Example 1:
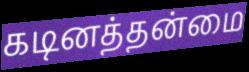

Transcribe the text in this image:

கடினத்தன்மை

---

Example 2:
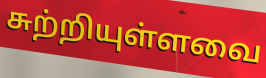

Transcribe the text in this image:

சுற்றியுள்ளவை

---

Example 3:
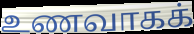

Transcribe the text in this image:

உணவாகக்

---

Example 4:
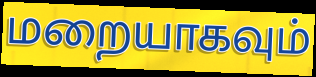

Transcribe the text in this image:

மறையாகவும்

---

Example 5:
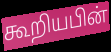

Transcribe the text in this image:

கூறியபின்